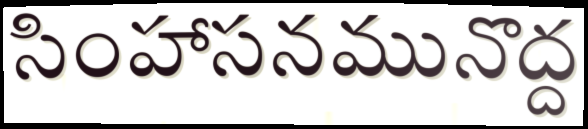
సింహాసనమునొద్ద